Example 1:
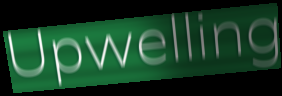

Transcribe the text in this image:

Upwelling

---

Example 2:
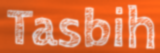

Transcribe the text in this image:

Tasbih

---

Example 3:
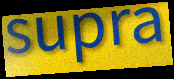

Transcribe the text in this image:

supra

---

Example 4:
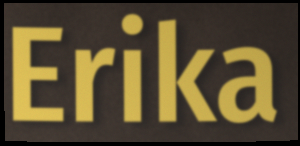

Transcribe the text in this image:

Erika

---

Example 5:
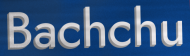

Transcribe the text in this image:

Bachchu